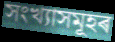
সংখ্যাসমূহৰ